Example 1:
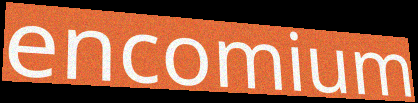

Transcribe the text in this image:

encomium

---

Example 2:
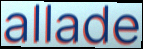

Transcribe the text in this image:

allade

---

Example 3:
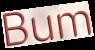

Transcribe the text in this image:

Bum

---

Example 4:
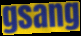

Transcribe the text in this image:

gsang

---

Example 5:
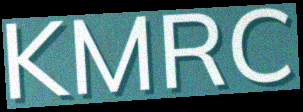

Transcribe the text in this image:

KMRC